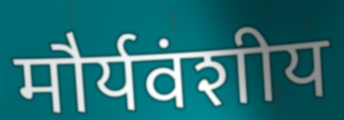
मौर्यवंशीय